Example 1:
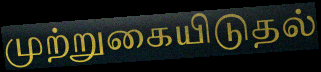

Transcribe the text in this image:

முற்றுகையிடுதல்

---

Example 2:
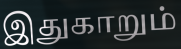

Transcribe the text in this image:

இதுகாறும்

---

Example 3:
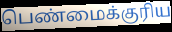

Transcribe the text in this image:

பெண்மைக்குரிய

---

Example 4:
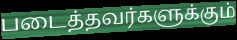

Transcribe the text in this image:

படைத்தவர்களுக்கும்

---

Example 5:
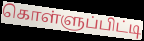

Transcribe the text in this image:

கொள்ளுப்பிட்டி